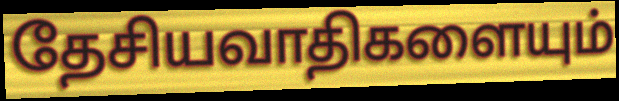
தேசியவாதிகளையும்